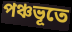
পঞ্চভূতে